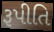
રૂપીતિ